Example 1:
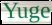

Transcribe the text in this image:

Yuge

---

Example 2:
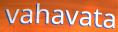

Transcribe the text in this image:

vahavata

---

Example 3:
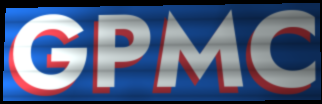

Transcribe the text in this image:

GPMC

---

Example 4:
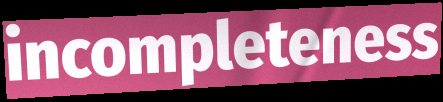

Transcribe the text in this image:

incompleteness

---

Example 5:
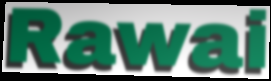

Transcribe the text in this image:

Rawai